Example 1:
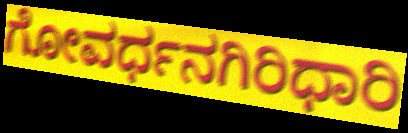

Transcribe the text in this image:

ಗೋವರ್ಧನಗಿರಿಧಾರಿ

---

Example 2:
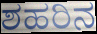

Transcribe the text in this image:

ಶಹರಿನ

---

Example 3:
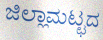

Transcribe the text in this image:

ಜಿಲ್ಲಾಮಟ್ಟದ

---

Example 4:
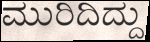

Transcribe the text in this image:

ಮುರಿದಿದ್ದು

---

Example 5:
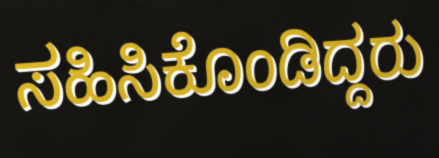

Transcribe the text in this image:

ಸಹಿಸಿಕೊಂಡಿದ್ದರು